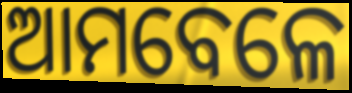
ଆମବେଳେ